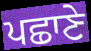
ਪਛਾਣੇ